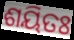
ଶୟିତଃ